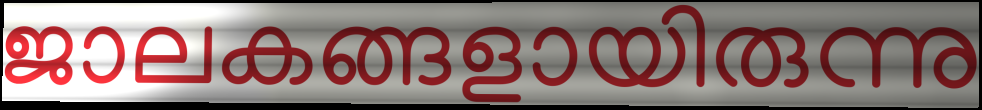
ജാലകങ്ങളായിരുന്നു